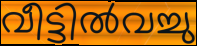
വീട്ടിൽവച്ചു